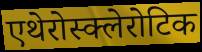
एथेरोस्क्लेरोटिक